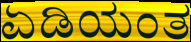
ಏಡಿಯಂತ